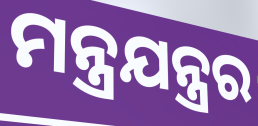
ମନ୍ତ୍ରଯନ୍ତ୍ରର